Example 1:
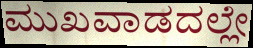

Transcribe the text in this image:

ಮುಖವಾಡದಲ್ಲೇ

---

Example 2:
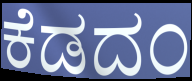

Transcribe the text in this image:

ಕೆಡದಂ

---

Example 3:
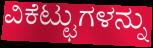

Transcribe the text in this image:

ವಿಕೆಟ್ಟುಗಳನ್ನು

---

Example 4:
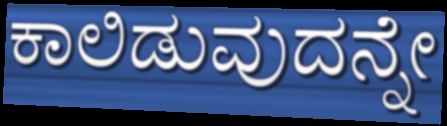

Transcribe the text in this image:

ಕಾಲಿಡುವುದನ್ನೇ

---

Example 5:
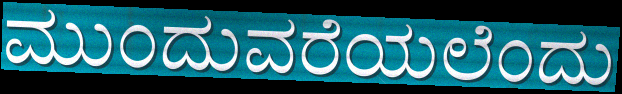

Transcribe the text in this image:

ಮುಂದುವರೆಯಲೆಂದು